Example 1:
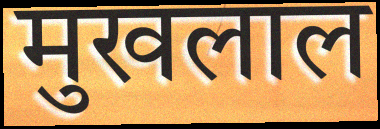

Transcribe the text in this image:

मुखलाल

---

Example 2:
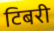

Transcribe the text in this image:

टिबरी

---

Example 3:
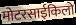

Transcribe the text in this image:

मोटरसाईकिलो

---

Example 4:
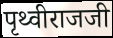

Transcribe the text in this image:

पृथ्वीराजजी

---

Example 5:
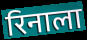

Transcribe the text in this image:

रिनाला